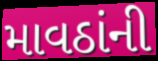
માવઠાંની